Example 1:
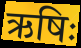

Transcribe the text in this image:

ऋषिः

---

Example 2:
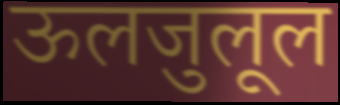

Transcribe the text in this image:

ऊलजुलूल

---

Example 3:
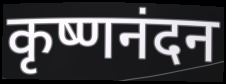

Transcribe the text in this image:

कृष्णनंदन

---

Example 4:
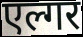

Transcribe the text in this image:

एल्गर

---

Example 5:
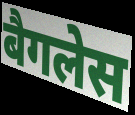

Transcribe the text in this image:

बैगलेस